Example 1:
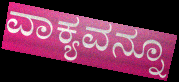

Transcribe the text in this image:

ವಾಕ್ಯವನ್ನೂ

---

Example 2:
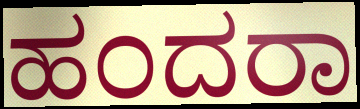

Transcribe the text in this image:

ಹಂದರಾ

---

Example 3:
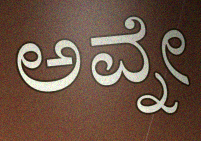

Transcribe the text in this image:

ಅವ್ನೇ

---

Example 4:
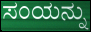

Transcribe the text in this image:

ಸಂಯನ್ನು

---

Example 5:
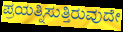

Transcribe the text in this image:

ಪ್ರಯತ್ನಿಸುತ್ತಿರುವುದೇ